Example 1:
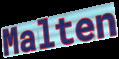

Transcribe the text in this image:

Malten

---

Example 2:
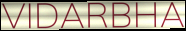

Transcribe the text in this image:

VIDARBHA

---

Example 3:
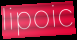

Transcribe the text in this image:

lipoic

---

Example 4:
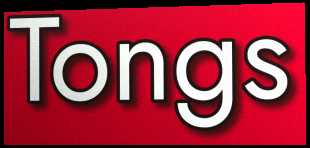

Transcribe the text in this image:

Tongs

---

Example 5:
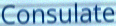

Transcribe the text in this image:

Consulate